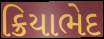
ક્રિયાભેદ